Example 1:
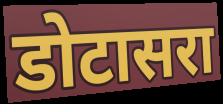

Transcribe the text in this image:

डोटासरा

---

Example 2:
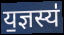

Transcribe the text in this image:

य॒ज्ञस्य॑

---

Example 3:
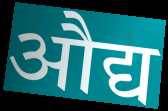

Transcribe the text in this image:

औद्य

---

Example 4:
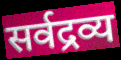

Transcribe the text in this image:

सर्वद्रव्य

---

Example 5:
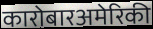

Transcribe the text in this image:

कारोबारअमेरिकी